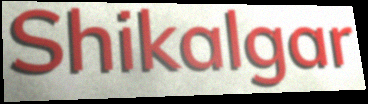
Shikalgar